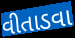
વીતાડવા